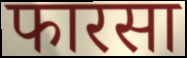
फारसा